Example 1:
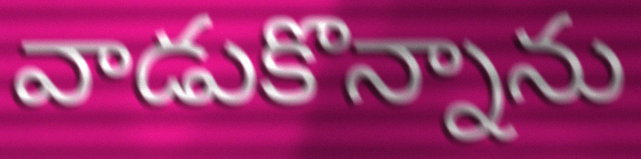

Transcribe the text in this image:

వాడుకొన్నాను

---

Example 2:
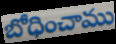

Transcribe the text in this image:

బోధించాము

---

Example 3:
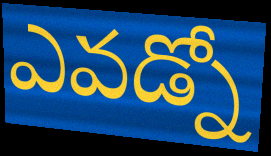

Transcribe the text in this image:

ఎవడ్నో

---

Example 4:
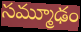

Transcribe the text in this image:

సమ్మూఢం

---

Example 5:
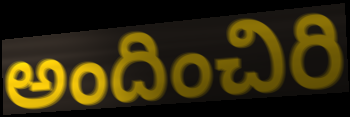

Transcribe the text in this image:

అందించిరి